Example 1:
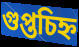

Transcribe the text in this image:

গুপ্তচিহ্ন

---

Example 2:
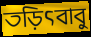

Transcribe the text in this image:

তড়িৎবাবু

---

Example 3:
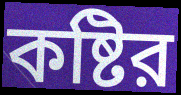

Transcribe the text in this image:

কষ্টির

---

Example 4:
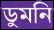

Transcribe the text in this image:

ডুমনি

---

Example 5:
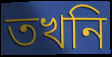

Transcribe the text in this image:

তখনি